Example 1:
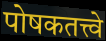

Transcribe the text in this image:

पोषकतत्त्वे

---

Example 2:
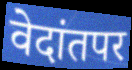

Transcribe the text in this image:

वेदांतपर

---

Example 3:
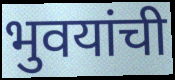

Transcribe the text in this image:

भुवयांची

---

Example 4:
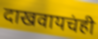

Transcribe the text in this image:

दाखवायचंही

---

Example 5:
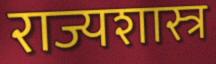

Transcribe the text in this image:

राज्यशास्त्र